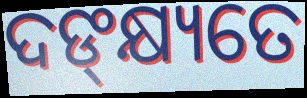
ଦଙ୍କ୍ଷ୍ଯତେ